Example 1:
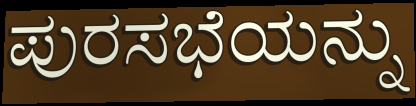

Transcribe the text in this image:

ಪುರಸಭೆಯನ್ನು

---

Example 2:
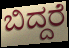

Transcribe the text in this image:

ಬಿದ್ದರೆ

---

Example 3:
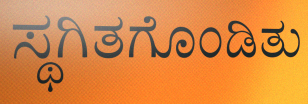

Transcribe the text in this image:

ಸ್ಥಗಿತಗೊಂಡಿತು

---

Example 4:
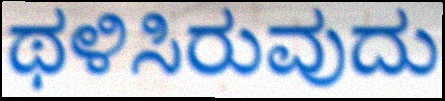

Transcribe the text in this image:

ಥಳಿಸಿರುವುದು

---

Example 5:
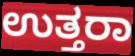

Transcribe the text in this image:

ಉತ್ತರಾ